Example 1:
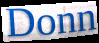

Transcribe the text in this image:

Donn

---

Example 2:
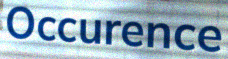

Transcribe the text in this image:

Occurence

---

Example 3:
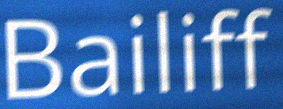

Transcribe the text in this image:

Bailiff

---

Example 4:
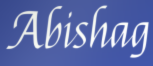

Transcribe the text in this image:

Abishag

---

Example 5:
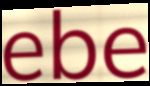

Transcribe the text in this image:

ebe